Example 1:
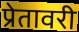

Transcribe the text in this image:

प्रेतावरी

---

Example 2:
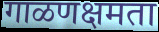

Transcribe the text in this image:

गाळणक्षमता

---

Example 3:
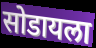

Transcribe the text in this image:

सोडायला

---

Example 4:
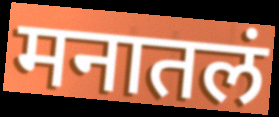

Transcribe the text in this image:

मनातलं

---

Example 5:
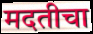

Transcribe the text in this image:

मदतीचा